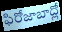
ఫిరోజాబాద్లో